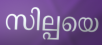
സില്പയെ